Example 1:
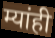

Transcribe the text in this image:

म्यांही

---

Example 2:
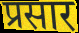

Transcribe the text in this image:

प्रसार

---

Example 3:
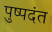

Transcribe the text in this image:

पुष्पदंत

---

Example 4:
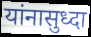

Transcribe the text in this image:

यांनासुध्दा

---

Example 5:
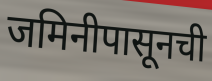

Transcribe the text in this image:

जमिनीपासूनची